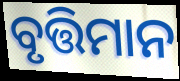
ବୃତ୍ତିମାନ